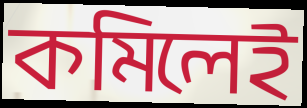
কমিলেই